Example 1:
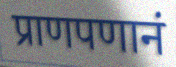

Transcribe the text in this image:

प्राणपणानं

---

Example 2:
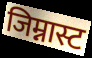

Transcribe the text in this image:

जिम्नास्ट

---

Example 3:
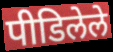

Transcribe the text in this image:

पीडिलेले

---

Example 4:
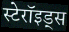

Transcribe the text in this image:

स्टेरॉइड्स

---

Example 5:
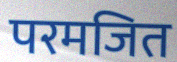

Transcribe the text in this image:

परमजित